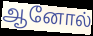
ஆனோல்